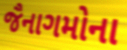
જૈનાગમોના